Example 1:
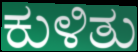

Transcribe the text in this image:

ಕುಳಿತು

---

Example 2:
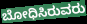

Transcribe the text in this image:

ಬೋಧಿಸಿರುವರು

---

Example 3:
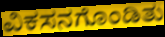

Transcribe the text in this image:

ವಿಕಸನಗೊಂಡಿತು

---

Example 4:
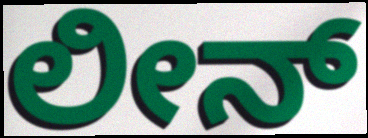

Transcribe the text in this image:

ಲೀನ್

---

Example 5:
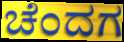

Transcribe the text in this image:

ಚೆಂದಗ